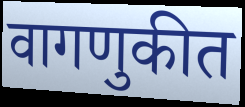
वागणुकीत